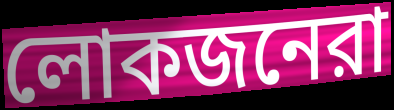
লোকজনেরা